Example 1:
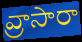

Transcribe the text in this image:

వ్రాసారా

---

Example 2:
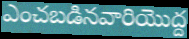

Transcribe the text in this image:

ఎంచబడినవారియొద్ద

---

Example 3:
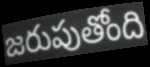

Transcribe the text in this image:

జరుపుతోంది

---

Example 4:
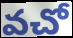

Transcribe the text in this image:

వచో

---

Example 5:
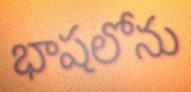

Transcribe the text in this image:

భాషలోను